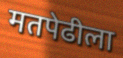
मतपेढीला